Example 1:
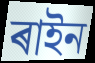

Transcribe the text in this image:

ৰাইন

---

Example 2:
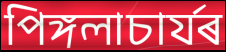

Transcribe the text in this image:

পিঙ্গলাচাৰ্যৰ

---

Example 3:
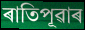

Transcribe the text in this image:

ৰাতিপূৱাৰ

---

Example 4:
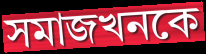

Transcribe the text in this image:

সমাজখনকে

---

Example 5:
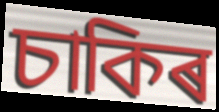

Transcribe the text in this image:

চাকিৰ